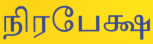
நிரபேக்ஷ